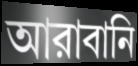
আরাবানি